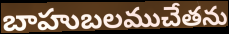
బాహుబలముచేతను